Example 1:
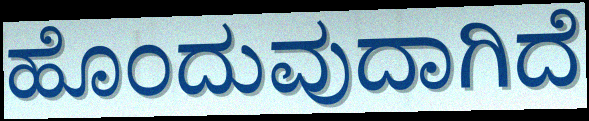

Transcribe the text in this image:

ಹೊಂದುವುದಾಗಿದೆ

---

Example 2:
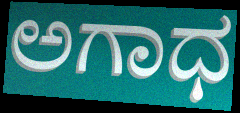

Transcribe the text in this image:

ಅಗಾಧ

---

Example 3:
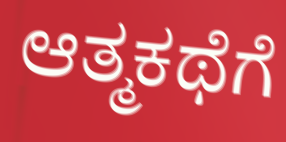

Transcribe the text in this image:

ಆತ್ಮಕಥೆಗೆ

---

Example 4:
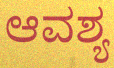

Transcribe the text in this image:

ಆವಶ್ಯ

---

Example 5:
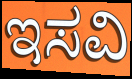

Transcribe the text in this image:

ಇಸವಿ